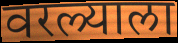
वरल्याला